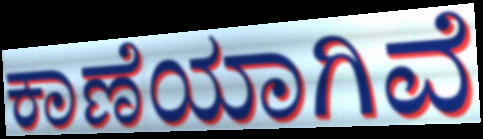
ಕಾಣೆಯಾಗಿವೆ